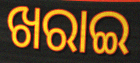
ଖରାଇ